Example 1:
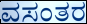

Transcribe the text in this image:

ವಸಂತರ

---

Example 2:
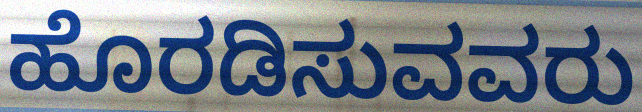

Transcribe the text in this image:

ಹೊರಡಿಸುವವರು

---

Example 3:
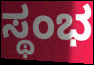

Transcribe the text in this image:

ಸ್ಥಂಭ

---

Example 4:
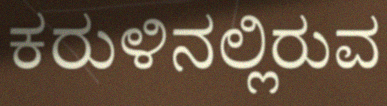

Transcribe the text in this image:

ಕರುಳಿನಲ್ಲಿರುವ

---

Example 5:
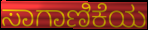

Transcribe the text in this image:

ಸಾಗಾಣಿಕೆಯ